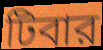
টিবার